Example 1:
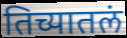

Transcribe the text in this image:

तिच्यातलं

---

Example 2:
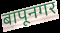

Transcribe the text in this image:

बापूनगर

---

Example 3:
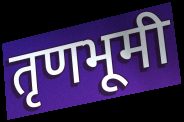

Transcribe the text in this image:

तृणभूमी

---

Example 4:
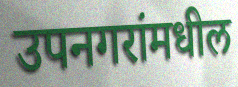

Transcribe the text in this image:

उपनगरांमधील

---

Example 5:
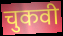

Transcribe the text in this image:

चुकवी